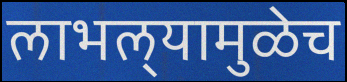
लाभल्यामुळेच